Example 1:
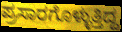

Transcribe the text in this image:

ಪ್ರಸಾರಗೊಳ್ಳುತ್ತಿದ್ದ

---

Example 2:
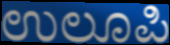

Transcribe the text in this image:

ಉಲೂಪಿ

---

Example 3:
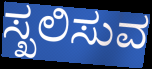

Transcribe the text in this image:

ಸ್ಖಲಿಸುವ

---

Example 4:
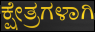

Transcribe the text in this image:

ಕ್ಷೇತ್ರಗಳಾಗಿ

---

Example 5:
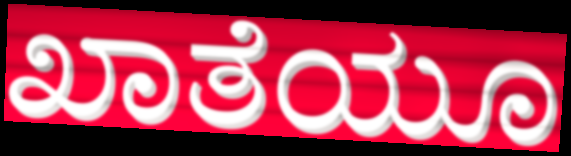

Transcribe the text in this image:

ಖಾತೆಯೂ